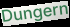
Dungern